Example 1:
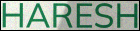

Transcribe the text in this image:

HARESH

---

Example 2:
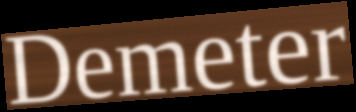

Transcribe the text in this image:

Demeter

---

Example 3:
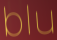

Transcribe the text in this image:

blu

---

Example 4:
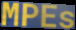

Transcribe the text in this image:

MPEs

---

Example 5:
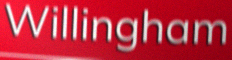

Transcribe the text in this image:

Willingham